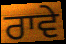
ਰਾਵੇ